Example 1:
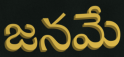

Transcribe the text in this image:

జనమే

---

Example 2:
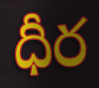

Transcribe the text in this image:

ధీర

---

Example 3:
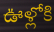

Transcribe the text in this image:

ఊళ్లోకి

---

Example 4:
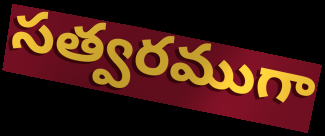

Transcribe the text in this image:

సత్వరముగా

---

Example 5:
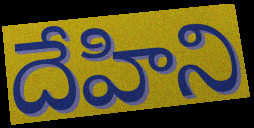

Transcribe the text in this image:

దేహిని